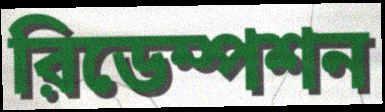
রিডেম্পশন